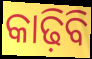
କାଢ଼ିବି